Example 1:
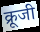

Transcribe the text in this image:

क्रूजी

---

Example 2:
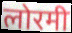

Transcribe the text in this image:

लोरमी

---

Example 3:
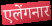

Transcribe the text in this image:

एलेंगनार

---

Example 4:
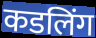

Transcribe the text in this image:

कडलिंग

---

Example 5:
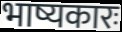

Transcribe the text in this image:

भाष्यकारः